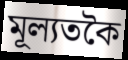
মূল্যতকৈ